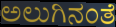
ಅಲುಗಿನಂತೆ